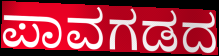
ಪಾವಗಡದ